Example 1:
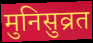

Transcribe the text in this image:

मुनिसुव्रत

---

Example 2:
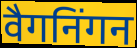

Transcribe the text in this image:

वैगनिंगन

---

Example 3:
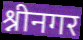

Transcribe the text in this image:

श्नीनगर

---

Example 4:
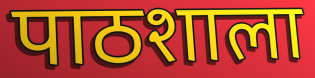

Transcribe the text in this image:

पाठशाला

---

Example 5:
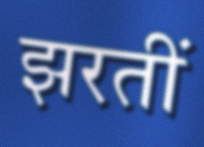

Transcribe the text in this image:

झरतीं